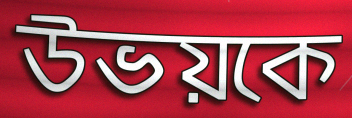
উভয়কে